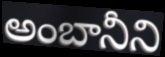
అంబానీని